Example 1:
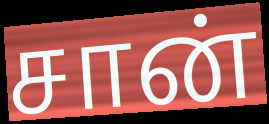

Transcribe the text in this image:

சான்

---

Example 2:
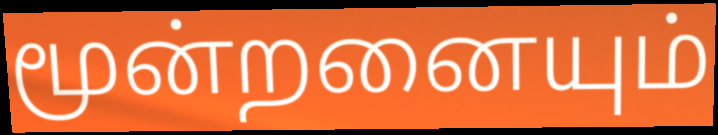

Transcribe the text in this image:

மூன்றனையும்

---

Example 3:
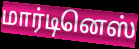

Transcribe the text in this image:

மார்டினெஸ்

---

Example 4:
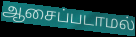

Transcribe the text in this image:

ஆசைப்படாமல்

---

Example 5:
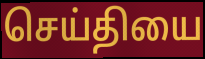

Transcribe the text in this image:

செய்தியை